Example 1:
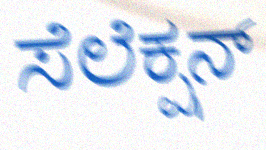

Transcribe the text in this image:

ಸೆಲೆಕ್ಷನ್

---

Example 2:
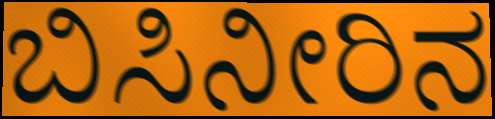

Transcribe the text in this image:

ಬಿಸಿನೀರಿನ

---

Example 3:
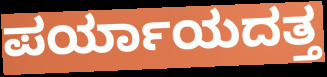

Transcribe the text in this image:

ಪರ್ಯಾಯದತ್ತ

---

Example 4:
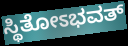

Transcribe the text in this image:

ಸ್ಥಿತೋಽಭವತ್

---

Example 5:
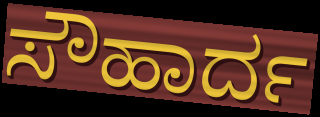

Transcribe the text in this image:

ಸೌಹಾರ್ದ